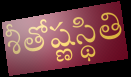
శీతోష్ణస్థితి